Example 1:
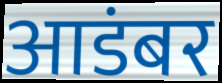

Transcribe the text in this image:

आडंबर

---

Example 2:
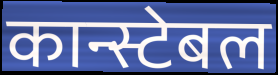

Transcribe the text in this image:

कान्स्टेबल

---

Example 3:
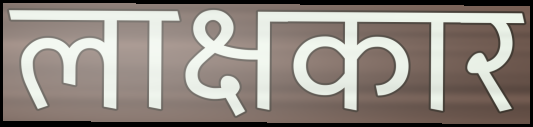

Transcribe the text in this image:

लाक्षकार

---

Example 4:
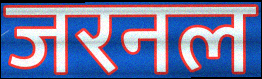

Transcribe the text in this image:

जरनल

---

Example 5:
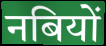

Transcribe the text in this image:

नबियों